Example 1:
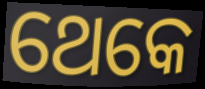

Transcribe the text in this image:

ଥେକେ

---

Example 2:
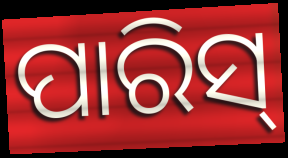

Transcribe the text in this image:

ପାରିସ୍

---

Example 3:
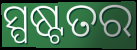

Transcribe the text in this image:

ସ୍ପଷ୍ଟତର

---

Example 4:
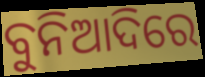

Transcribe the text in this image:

ବୁନିଆଦିରେ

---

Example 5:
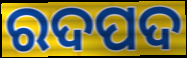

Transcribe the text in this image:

ରଦପଦ